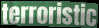
terroristic